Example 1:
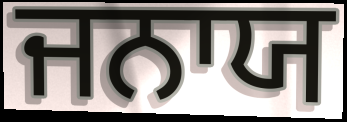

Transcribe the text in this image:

ਜਨਾਯ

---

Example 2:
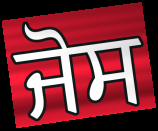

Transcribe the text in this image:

ਜੋਸ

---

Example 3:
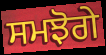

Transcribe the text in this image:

ਸਮਝੋਗੇ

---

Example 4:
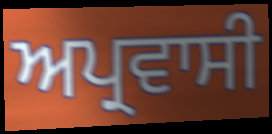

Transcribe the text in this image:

ਅਪ੍ਰਵਾਸੀ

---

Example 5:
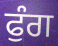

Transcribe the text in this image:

ਫੁੰਗ